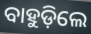
ବାହୁଡ଼ିଲେ